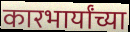
कारभार्यांच्या